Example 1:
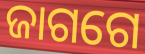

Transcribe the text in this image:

ଜାଗଗେ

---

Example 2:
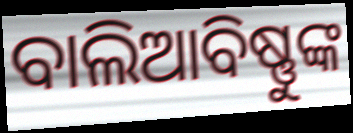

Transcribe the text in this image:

ବାଲିଆବିଷ୍ଣୁଙ୍କ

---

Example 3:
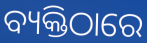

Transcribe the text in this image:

ବ୍ୟକ୍ତିଠାରେ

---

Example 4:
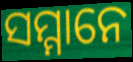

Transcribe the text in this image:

ସମ୍ମାନେ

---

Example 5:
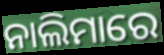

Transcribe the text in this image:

ନାଲିମାରେ